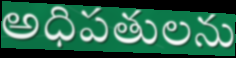
అధిపతులను